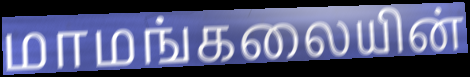
மாமங்கலையின்